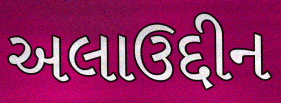
અલાઉદ્દીન